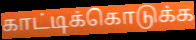
காட்டிக்கொடுக்க